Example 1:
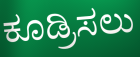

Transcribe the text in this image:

ಕೂಡ್ರಿಸಲು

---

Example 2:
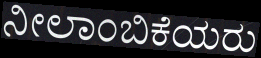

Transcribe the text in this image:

ನೀಲಾಂಬಿಕೆಯರು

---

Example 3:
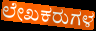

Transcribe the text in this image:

ಲೇಖಕರುಗಳ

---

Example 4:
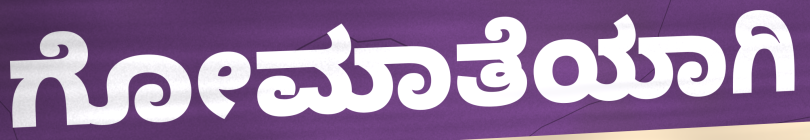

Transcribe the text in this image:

ಗೋಮಾತೆಯಾಗಿ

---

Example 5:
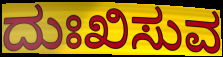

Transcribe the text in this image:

ದುಃಖಿಸುವ